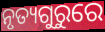
ନୃତ୍ୟଗୁରୁରେ